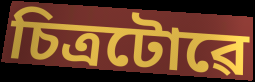
চিত্ৰটোৱে